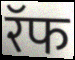
रॅफ